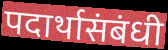
पदार्थासंबंधी